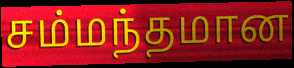
சம்மந்தமான